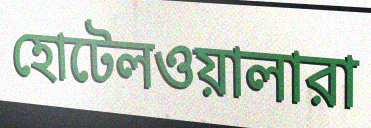
হোটেলওয়ালারা